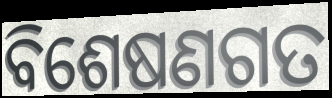
ବିଶେଷଣଗତ